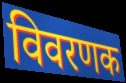
विवरणक